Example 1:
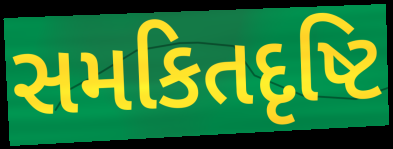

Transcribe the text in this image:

સમકિતદૃષ્ટિ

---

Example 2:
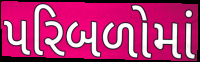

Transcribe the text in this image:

પરિબળોમાં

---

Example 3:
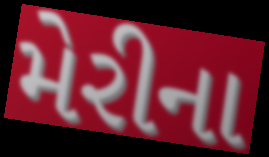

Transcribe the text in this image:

મેરીના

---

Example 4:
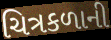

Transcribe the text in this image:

ચિત્રકળાની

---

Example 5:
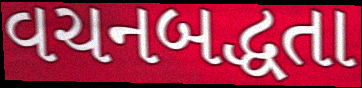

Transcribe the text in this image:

વચનબદ્ધતા